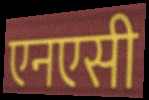
एनएसी